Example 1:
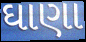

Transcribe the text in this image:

ઘાણા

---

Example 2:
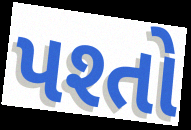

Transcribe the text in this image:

પશ્તો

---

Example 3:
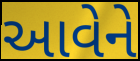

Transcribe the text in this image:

આવેને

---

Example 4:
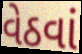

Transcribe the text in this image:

વેઠવાં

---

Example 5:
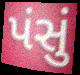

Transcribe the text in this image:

પંસું